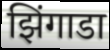
झिंगाडा